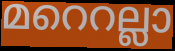
മറെറല്ലാ